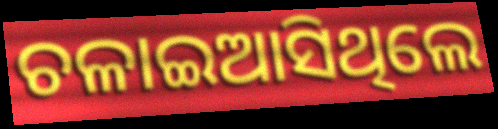
ଚଳାଇଆସିଥିଲେ